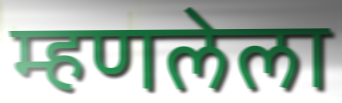
म्हणलेला